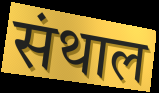
संथाल